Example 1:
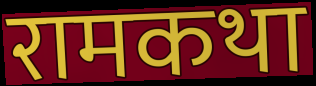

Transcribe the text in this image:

रामकथा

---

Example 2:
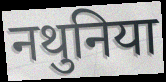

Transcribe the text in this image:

नथुनिया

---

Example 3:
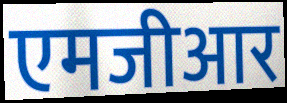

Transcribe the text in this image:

एमजीआर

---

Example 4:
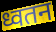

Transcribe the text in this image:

ध्वतन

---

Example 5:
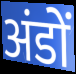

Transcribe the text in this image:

अंडों